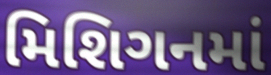
મિશિગનમાં